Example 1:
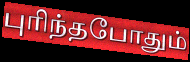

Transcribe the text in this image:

புரிந்தபோதும்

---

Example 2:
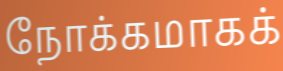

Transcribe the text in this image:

நோக்கமாகக்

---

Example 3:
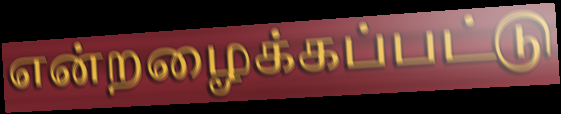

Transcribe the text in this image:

என்றழைக்கப்பட்டு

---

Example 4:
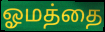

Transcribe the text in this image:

ஓமத்தை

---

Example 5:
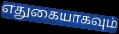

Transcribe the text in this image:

எதுகையாகவும்